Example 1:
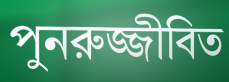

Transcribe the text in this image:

পুনরুজ্জীবিত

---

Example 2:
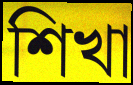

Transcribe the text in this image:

শিখা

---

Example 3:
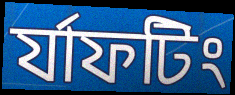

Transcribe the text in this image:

র্যাফটিং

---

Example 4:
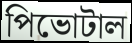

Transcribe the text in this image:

পিভোটাল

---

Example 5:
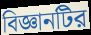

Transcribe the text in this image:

বিজ্ঞানটির